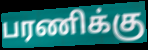
பரணிக்கு